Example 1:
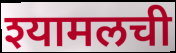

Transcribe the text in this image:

श्यामलची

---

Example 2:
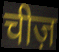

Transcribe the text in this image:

चीज़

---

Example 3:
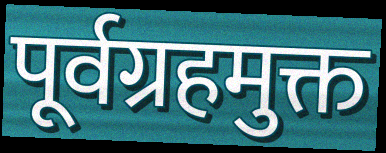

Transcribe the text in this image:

पूर्वग्रहमुक्त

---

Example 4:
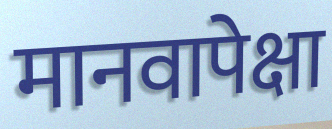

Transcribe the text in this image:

मानवापेक्षा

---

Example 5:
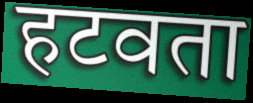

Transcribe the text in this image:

हटवता